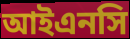
আইএনসি